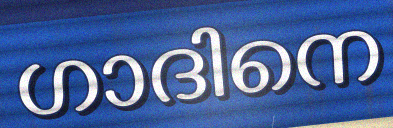
ഗാദിനെ